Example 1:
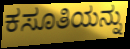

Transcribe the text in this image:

ಕಸೂತಿಯನ್ನು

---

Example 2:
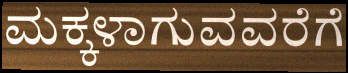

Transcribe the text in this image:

ಮಕ್ಕಳಾಗುವವರೆಗೆ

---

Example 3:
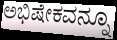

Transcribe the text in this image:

ಅಭಿಷೇಕವನ್ನೂ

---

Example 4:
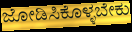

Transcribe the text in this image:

ಜೋಡಿಸಿಕೊಳ್ಳಬೇಕು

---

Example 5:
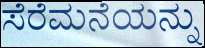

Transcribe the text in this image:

ಸೆರೆಮನೆಯನ್ನು